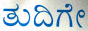
ತುದಿಗೇ